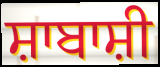
ਸ਼ਾਬਾਸ਼ੀ